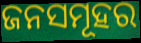
ଜନସମୂହର